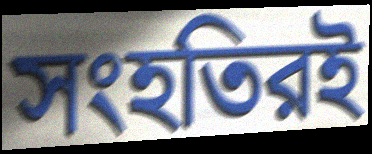
সংহতিরই